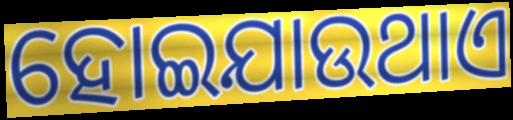
ହୋଇଯାଉଥାଏ